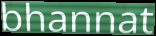
bhannat